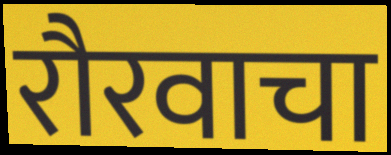
रौरवाचा